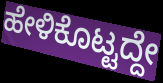
ಹೇಳಿಕೊಟ್ಟದ್ದೇ